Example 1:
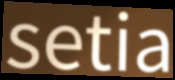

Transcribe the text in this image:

setia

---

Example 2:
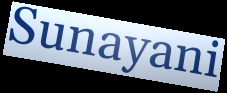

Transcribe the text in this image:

Sunayani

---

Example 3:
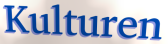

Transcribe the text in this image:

Kulturen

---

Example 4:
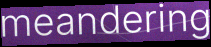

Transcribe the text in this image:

meandering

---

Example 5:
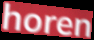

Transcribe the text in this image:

horen